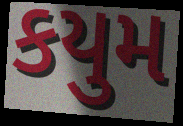
કયુમ